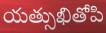
యత్సుఖితోపి